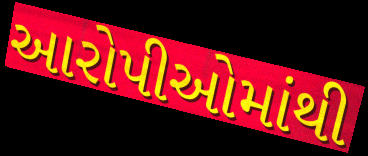
આરોપીઓમાંથી